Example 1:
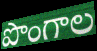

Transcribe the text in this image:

పొంగాల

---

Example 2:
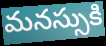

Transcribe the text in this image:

మనస్సుకి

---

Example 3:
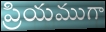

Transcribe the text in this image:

ప్రియముగా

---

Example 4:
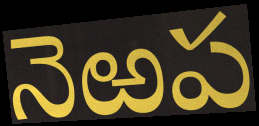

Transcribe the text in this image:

నెఱప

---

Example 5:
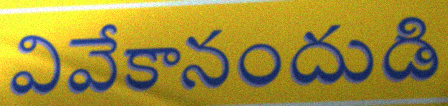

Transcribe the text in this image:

వివేకానందుడి